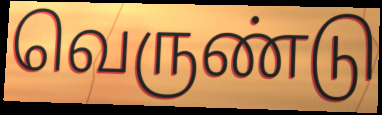
வெருண்டு